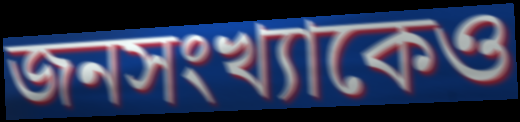
জনসংখ্যাকেও